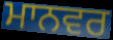
ਮਾਨਵਰ